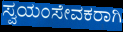
ಸ್ವಯಂಸೇವಕರಾಗಿ